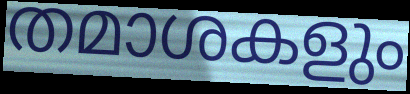
തമാശകളും